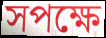
সপক্ষে